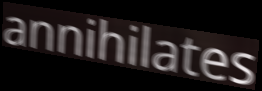
annihilates